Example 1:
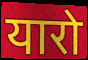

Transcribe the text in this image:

यारो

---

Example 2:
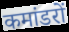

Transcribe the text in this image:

कमांडरों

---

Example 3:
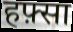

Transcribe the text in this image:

हफ़्सा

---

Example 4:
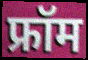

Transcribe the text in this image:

फ्रॉम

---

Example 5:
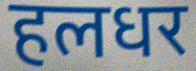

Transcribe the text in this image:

हलधर